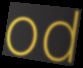
od